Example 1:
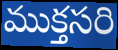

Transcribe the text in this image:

ముక్తసరి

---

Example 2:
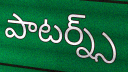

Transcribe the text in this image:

పాటర్న్స్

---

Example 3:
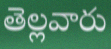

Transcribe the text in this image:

తెల్లవారు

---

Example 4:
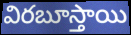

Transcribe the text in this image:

విరబూస్తాయి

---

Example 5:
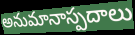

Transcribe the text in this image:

అనుమానాస్పదాలు